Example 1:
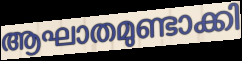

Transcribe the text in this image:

ആഘാതമുണ്ടാക്കി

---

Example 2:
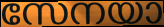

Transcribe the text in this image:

സേനയാ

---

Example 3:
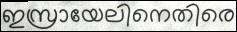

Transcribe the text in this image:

ഇസ്രായേലിനെതിരെ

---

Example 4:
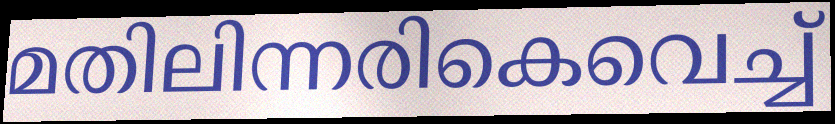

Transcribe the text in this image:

മതിലിന്നരികെവെച്ച്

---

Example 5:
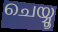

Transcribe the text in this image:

ചെയ്യൂ